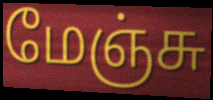
மேஞ்சு